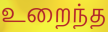
உறைந்த